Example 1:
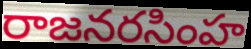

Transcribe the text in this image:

రాజనరసింహ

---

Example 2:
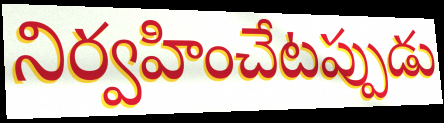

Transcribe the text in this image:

నిర్వహించేటప్పుడు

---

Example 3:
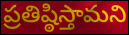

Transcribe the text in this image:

ప్రతిష్ఠిస్తామని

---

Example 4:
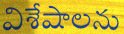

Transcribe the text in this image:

విశేషాలను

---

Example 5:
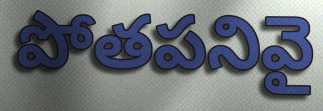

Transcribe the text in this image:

పోతపనివై